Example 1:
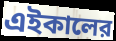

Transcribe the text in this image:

এইকালের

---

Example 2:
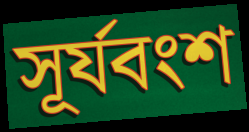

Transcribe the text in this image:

সূর্যবংশ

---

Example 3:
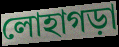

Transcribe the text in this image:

লোহাগড়া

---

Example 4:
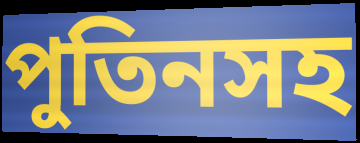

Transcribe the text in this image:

পুতিনসহ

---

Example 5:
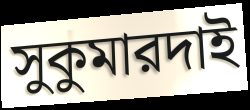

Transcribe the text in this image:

সুকুমারদাই